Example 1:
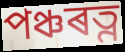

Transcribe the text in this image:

পঞ্চৰত্ন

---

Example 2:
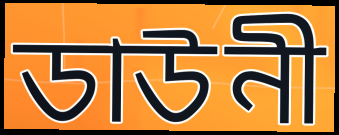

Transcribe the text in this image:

ডাউনী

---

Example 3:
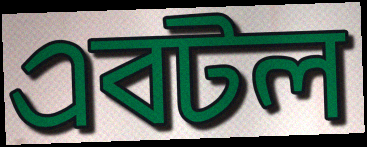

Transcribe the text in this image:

এবটল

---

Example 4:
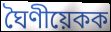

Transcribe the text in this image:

ঘৈণীয়েকক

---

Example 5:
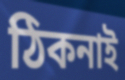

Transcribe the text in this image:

ঠিকনাই